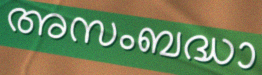
അസംബദ്ധാ